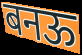
बनऊ